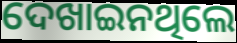
ଦେଖାଇନଥିଲେ